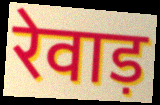
रेवाड़